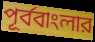
পূর্ববাংলার